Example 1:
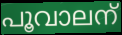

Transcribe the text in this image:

പൂവാലന്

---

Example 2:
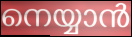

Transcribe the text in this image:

നെയ്യാൻ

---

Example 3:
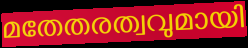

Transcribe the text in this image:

മതേതരത്വവുമായി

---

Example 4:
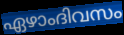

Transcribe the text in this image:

ഏഴാംദിവസം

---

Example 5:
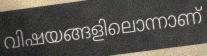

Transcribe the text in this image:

വിഷയങ്ങളിലൊന്നാണ്